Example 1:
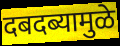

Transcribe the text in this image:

दबदब्यामुळे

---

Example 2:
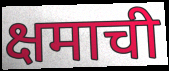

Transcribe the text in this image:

क्षमाची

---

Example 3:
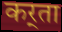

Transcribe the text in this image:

कर्ता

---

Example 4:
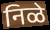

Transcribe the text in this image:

निळे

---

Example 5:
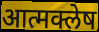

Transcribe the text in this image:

आत्मक्लेष